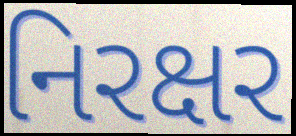
નિરક્ષર